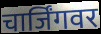
चार्जिंगवर